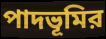
পাদভূমির